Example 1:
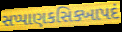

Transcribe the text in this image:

સપ્પાણકસિક્ખાપદં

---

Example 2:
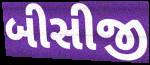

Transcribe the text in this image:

બીસીજી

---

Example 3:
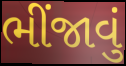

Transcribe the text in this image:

ભીંજાવું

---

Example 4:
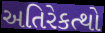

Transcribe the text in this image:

અતિરેકત્થો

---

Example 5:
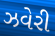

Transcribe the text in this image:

ઝવેરી